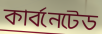
কার্বনেটেড